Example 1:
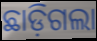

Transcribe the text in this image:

ଛାଡ଼ିଗଲା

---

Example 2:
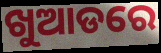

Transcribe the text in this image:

ଖୁଆଡରେ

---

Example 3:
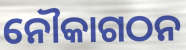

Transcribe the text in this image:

ନୌକାଗଠନ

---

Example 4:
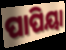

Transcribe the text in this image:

ପାପିୟା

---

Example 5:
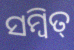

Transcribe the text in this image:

ସମ୍ବିତ୍